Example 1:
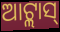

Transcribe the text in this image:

ଆଟ୍ଲାସ୍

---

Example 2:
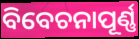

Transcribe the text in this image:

ବିବେଚନାପୂର୍ଣ୍ଣ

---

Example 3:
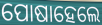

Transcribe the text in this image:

ପୋଷାହେଲେ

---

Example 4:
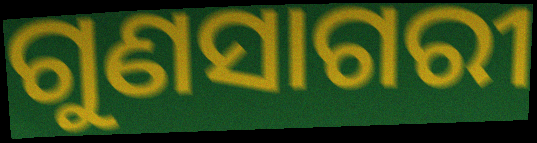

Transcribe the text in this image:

ଗୁଣସାଗରୀ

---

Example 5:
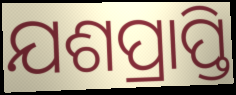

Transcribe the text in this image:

ଯଶପ୍ରାପ୍ତି